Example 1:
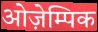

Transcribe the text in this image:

ओज़ेम्पिक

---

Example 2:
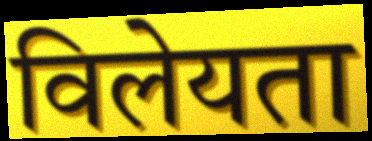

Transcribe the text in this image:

विलेयता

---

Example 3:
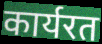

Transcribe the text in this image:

कार्यरत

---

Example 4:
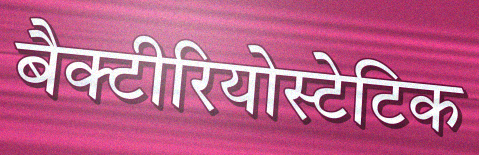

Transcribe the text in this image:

बैक्टीरियोस्टेटिक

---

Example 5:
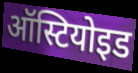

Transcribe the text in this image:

ऑस्टियोइड